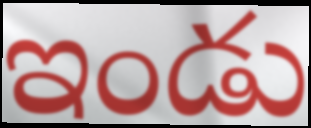
ఇండు